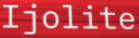
Ijolite